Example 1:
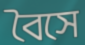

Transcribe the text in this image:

বৈসে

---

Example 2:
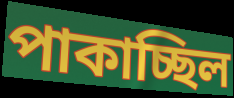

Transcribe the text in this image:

পাকাচ্ছিল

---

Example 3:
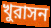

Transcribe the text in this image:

খুরাসন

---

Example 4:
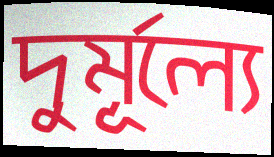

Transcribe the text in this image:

দুর্মূল্যে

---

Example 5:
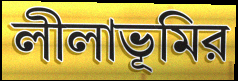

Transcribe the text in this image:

লীলাভূমির